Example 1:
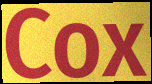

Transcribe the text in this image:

Cox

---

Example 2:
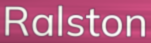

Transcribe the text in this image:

Ralston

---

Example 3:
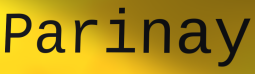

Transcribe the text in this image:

Parinay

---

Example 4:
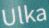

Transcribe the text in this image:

Ulka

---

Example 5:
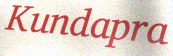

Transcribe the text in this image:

Kundapra